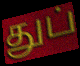
துப்